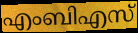
എംബിഎസ്